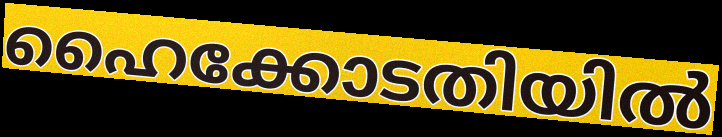
ഹൈക്കോടതിയിൽ